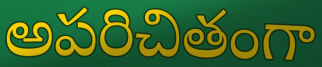
అపరిచితంగా